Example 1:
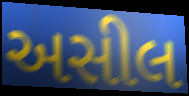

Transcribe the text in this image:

અસીલ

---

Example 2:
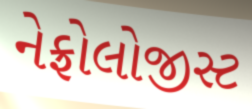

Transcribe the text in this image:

નેફ્રોલોજીસ્ટ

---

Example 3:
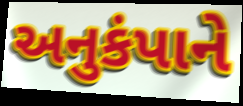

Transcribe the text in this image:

અનુકંપાને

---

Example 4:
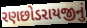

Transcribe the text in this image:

રણછોડરાયજીનું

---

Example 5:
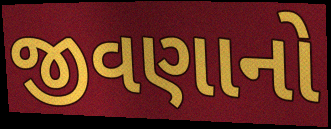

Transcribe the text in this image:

જીવણાનો